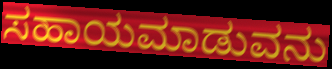
ಸಹಾಯಮಾಡುವನು